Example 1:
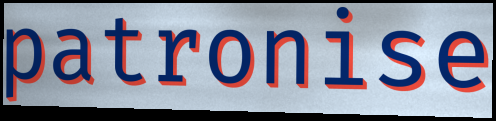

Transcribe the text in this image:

patronise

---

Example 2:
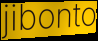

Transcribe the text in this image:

jibonto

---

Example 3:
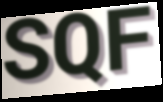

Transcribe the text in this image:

SQF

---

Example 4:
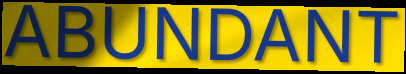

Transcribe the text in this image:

ABUNDANT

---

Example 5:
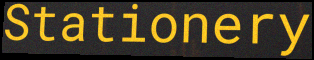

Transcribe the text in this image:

Stationery